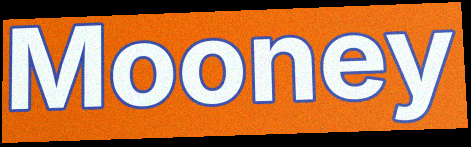
Mooney